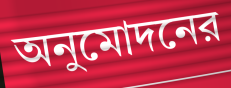
অনুমোদনের